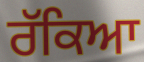
ਰੱਕਿਆ